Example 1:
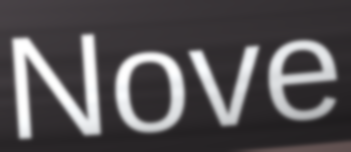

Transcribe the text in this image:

Nove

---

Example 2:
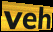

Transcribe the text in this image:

veh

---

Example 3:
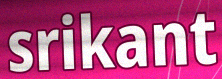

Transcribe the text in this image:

srikant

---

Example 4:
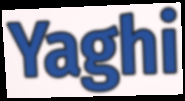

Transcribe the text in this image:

Yaghi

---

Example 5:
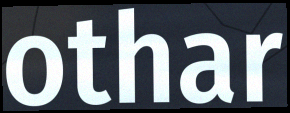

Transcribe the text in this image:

othar